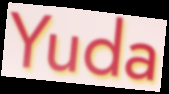
Yuda